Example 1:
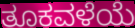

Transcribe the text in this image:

ತೂಕವಳೆಯೆ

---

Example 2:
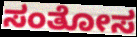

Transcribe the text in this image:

ಸಂತೋಸ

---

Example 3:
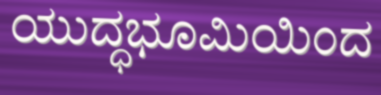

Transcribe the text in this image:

ಯುದ್ಧಭೂಮಿಯಿಂದ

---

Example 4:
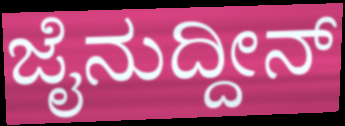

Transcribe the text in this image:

ಜೈನುದ್ದೀನ್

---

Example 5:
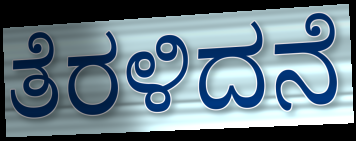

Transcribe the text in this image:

ತೆರಳಿದನೆ